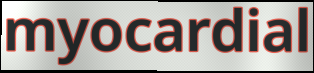
myocardial